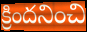
క్రిందనించి